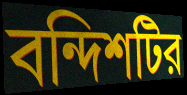
বন্দিশটির